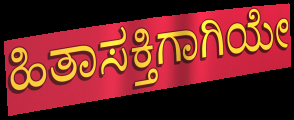
ಹಿತಾಸಕ್ತಿಗಾಗಿಯೇ